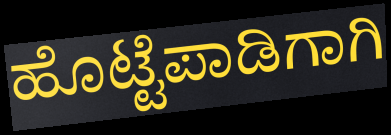
ಹೊಟ್ಟೆಪಾಡಿಗಾಗಿ